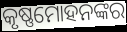
କୃଷ୍ଣମୋହନଙ୍କର